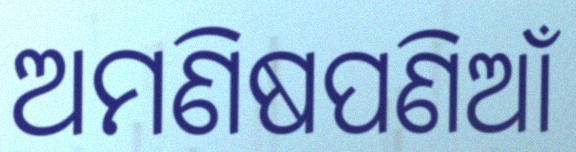
ଅମଣିଷପଣିଆଁ